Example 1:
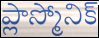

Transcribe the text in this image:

ప్లాస్మోనిక్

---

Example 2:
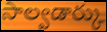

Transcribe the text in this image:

సాల్వడార్కు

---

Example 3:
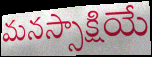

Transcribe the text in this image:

మనస్సాక్షియే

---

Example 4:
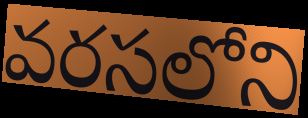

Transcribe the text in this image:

వరసలోని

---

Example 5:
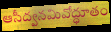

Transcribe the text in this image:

ఆసీద్వనమివోద్ధూతం